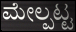
ಮೇಲ್ಪಟ್ಟ